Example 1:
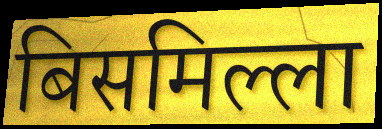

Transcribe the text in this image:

बिसमिल्ला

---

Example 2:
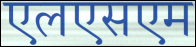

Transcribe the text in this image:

एलएसएम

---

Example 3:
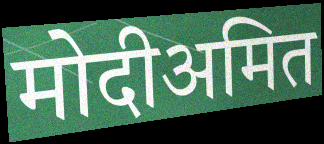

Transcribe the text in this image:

मोदीअमित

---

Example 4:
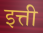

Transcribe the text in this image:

इत्ती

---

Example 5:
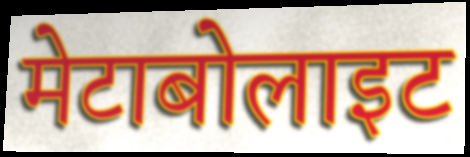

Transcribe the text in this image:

मेटाबोलाइट